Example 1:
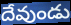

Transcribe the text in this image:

దేవుండు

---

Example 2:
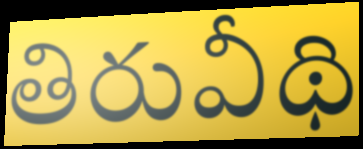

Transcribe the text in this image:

తిరువీథి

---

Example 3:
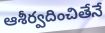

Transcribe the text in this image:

ఆశీర్వదించితేనే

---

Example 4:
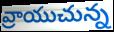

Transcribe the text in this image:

వ్రాయుచున్న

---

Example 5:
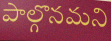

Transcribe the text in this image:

పాల్గొనమని